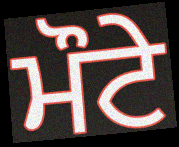
ਮੌਟੇ